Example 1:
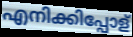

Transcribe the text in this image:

എനിക്കിപ്പോള്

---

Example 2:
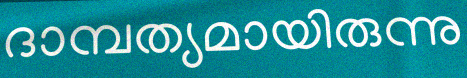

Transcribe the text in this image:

ദാമ്പത്യമായിരുന്നു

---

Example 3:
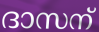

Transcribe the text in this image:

ദാസന്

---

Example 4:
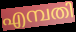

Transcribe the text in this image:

എമ്പതി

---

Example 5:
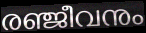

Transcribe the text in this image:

രഞ്ജീവനും